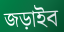
জড়াইব